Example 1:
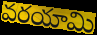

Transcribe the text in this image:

వరయామి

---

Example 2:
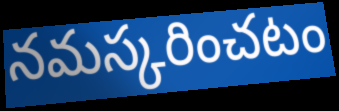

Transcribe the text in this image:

నమస్కరించటం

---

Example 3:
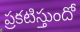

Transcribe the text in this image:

ప్రకటిస్తుందో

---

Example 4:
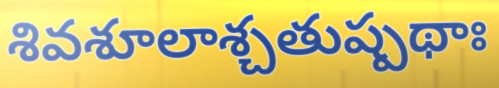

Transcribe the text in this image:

శివశూలాశ్చతుష్పథాః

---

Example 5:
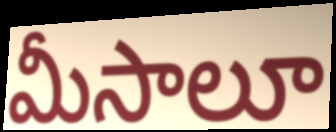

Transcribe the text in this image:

మీసాలూ